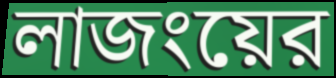
লাজংয়ের